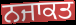
ਨਜਾਕਤ